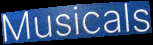
Musicals